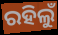
ରହିଲୁଁ